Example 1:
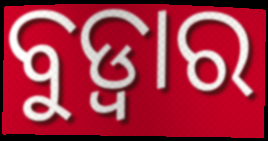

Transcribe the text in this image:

ବୁଡ୍ୱାର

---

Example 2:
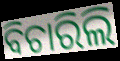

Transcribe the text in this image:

ବିଚାରିଲି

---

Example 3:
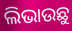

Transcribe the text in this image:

ଲିଭାଉଛୁ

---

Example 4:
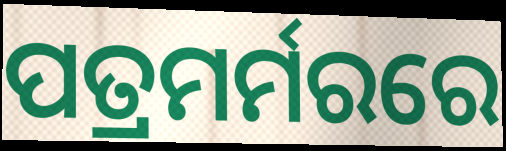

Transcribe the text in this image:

ପତ୍ରମର୍ମରରେ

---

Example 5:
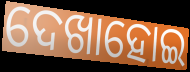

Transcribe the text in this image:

ଦେଖାହୋଇ